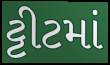
ટ્ટીટમાં